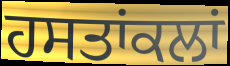
ਹਸਤਾਂਕਲਾਂ